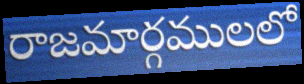
రాజమార్గములలో